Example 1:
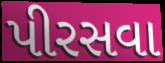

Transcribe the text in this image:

પીરસવા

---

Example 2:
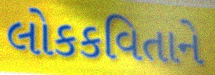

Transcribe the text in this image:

લોકકવિતાને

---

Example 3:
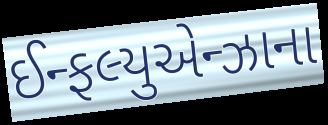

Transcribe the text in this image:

ઈન્ફલ્યુએન્ઝાના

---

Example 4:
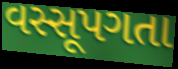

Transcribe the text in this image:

વસ્સૂપગતા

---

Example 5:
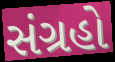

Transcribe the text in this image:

સંગ્રહો